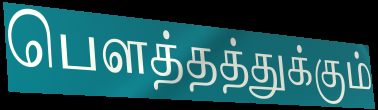
பௌத்தத்துக்கும்